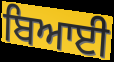
ਬਿਆਈ